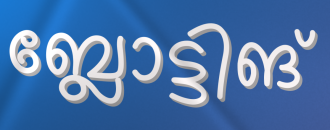
ബ്ലോട്ടിങ്